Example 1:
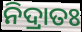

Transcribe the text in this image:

ନିଦ୍ରାତଃ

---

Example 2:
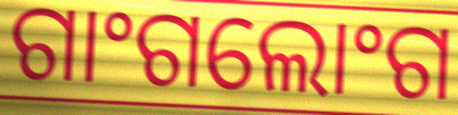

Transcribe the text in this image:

ଗାଂଗଲୋଂଗ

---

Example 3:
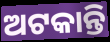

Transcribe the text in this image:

ଅଟକାନ୍ତି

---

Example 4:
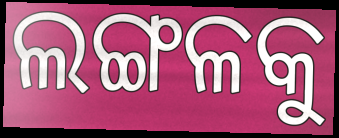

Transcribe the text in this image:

ଲଙ୍ଗଳକୁ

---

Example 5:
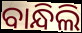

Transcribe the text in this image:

ବାନ୍ଧିଲି